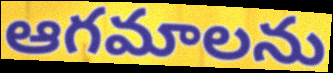
ఆగమాలను